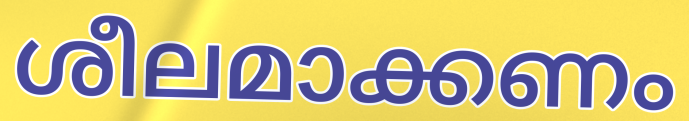
ശീലമാക്കണം